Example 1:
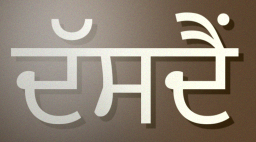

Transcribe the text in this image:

ਦੱਸਦੈਂ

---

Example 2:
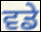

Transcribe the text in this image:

ਵਡੇ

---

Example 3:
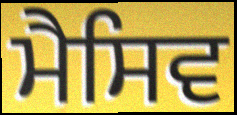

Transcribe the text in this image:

ਮੈਸਿਵ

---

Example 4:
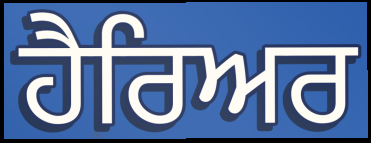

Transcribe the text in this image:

ਹੈਰਿਅਰ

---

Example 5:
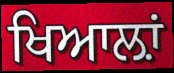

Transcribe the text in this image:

ਖਿਆਲ਼ਾਂ